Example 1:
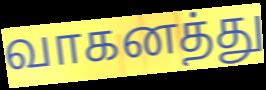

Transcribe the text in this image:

வாகனத்து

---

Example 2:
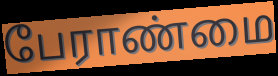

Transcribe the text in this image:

பேராண்மை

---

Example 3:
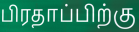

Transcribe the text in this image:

பிரதாப்பிற்கு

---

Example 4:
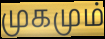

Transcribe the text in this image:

முகமும்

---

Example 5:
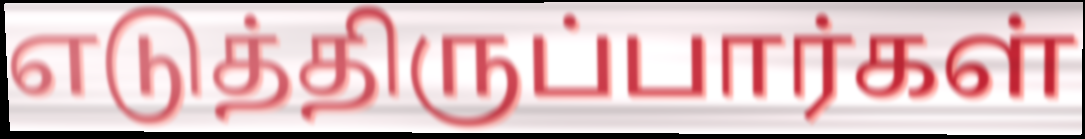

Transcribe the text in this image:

எடுத்திருப்பார்கள்